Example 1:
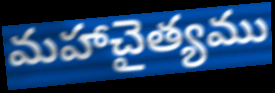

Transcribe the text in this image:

మహాచైత్యము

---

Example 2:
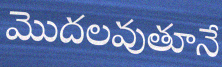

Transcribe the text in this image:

మొదలవుతూనే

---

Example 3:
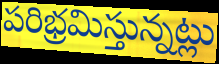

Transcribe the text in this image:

పరిభ్రమిస్తున్నట్లు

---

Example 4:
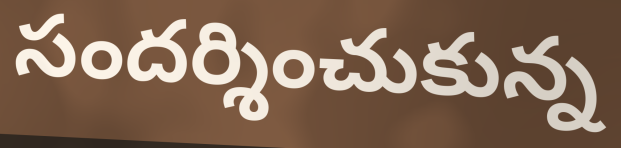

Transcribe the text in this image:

సందర్శించుకున్న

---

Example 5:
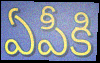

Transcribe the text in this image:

ఏపీకి